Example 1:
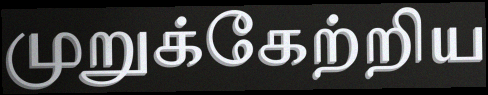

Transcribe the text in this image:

முறுக்கேற்றிய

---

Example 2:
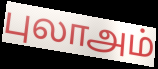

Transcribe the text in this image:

புலாஅம்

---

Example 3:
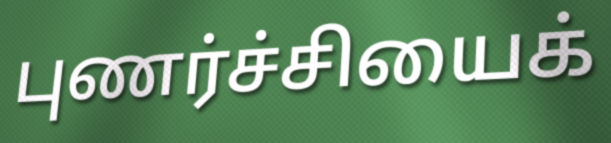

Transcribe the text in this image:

புணர்ச்சியைக்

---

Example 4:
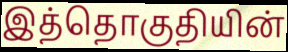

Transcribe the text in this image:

இத்தொகுதியின்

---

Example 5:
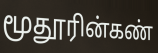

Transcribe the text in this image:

மூதூரின்கண்